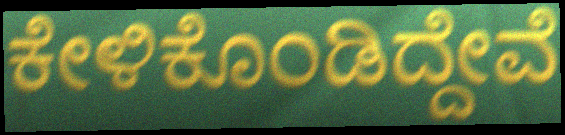
ಕೇಳಿಕೊಂಡಿದ್ದೇವೆ